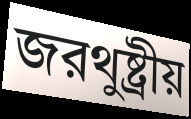
জরথুষ্ট্রীয়